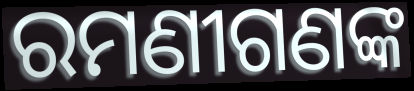
ରମଣୀଗଣଙ୍କ